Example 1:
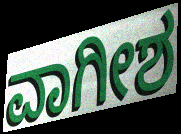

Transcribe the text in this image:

ವಾಗೀಶ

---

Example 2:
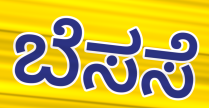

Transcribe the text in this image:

ಬೆಸಸೆ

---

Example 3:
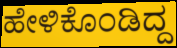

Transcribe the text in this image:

ಹೇಳಿಕೊಂಡಿದ್ದ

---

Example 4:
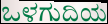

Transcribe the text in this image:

ಒಳಗುದಿಯ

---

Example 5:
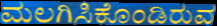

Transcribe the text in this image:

ಮಲಗಿಸಿಕೊಂಡಿರುವ